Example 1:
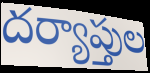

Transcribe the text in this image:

దర్యాప్తుల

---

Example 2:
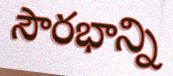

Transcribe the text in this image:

సౌరభాన్ని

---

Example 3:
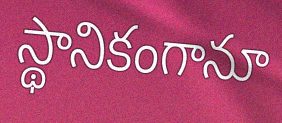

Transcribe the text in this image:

స్థానికంగానూ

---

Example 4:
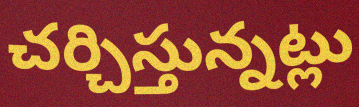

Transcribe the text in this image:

చర్చిస్తున్నట్లు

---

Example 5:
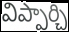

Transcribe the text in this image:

విప్పార్చి